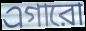
এগারো